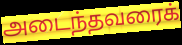
அடைந்தவரைக்